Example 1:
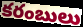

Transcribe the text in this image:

కరంబులు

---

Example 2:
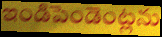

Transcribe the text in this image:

ఇండిపెండెంట్లను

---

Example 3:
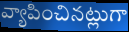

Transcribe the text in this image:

వ్యాపించినట్లుగా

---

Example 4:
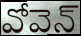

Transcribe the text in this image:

వోవెన్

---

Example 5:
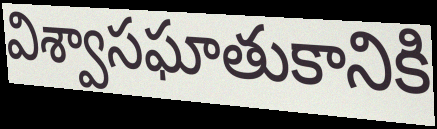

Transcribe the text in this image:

విశ్వాసఘాతుకానికి